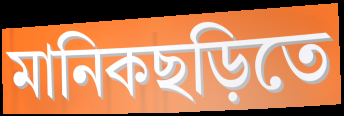
মানিকছড়িতে